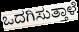
ಒದಗಿಸುತ್ತಾಳೆ